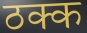
ठक्क